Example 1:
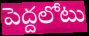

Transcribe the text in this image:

పెద్దలోటు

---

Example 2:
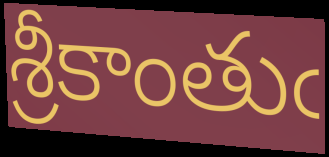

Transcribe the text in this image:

శ్రీకాంతుఁ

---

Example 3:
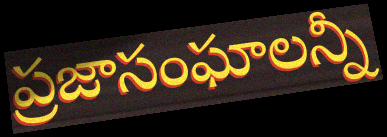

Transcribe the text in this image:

ప్రజాసంఘాలన్నీ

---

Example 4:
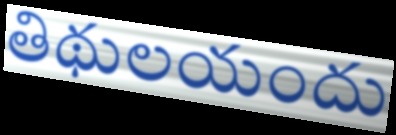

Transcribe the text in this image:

తిథులయందు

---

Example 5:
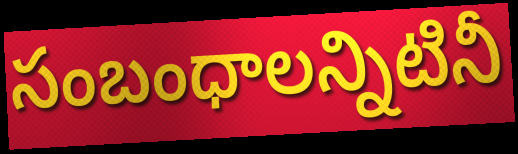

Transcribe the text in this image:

సంబంధాలన్నిటినీ